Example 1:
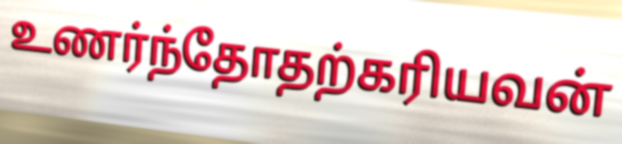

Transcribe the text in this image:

உணர்ந்தோதற்கரியவன்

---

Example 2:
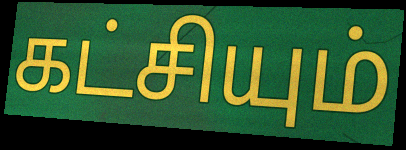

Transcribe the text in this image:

கட்சியும்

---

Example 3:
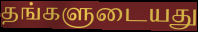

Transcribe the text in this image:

தங்களுடையது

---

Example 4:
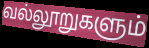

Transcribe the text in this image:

வல்லூறுகளும்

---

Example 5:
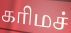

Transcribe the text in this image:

கரிமச்